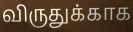
விருதுக்காக